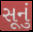
સૂનું